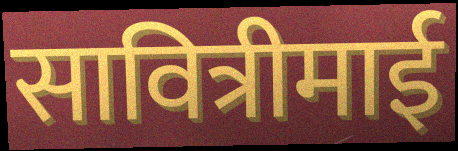
सावित्रीमाई